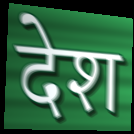
देश